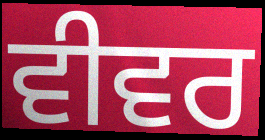
ਵੀਵਰ